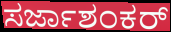
ಸರ್ಜಾಶಂಕರ್